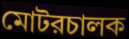
মোটরচালক